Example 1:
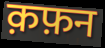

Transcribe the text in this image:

क़फ़न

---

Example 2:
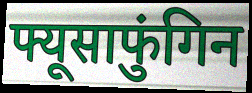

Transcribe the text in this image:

फ्यूसाफुंगिन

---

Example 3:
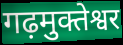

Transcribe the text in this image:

गढ़मुक्तेश्वर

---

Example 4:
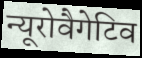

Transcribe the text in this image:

न्यूरोवैगेटिव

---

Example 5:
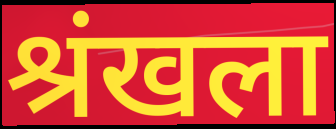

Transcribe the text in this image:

श्रंखला